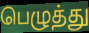
பெழுத்து